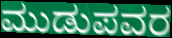
ಮುಡುಪವರ